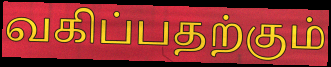
வகிப்பதற்கும்